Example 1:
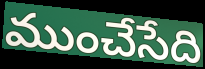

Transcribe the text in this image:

ముంచేసేది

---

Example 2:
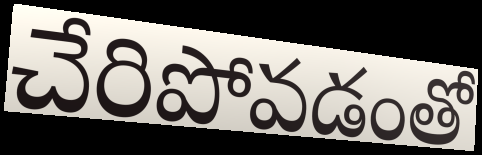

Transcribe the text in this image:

చేరిపోవడంతో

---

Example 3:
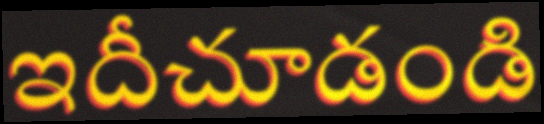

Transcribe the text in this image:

ఇదీచూడండి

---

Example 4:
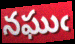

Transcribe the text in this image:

నఘుఁ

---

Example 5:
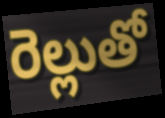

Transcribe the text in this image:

రెల్లుతో